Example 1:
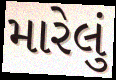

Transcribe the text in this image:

મારેલું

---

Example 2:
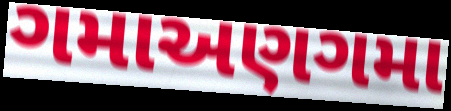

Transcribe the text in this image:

ગમાઅણગમા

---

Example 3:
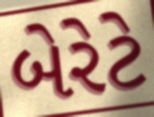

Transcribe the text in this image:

બેરેટે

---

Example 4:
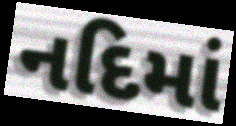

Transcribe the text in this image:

નદિમાં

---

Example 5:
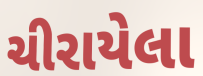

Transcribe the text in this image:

ચીરાયેલા